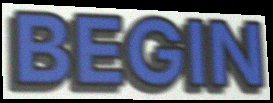
BEGIN